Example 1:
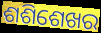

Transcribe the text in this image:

ଶଶିଶେଖର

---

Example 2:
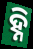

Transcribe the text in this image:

ହ୍ନି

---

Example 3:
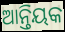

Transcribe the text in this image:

ଆନ୍ତିୟକ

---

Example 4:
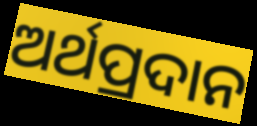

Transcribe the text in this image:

ଅର୍ଥପ୍ରଦାନ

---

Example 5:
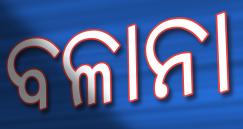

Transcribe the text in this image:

ବଳାନା